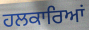
ਹਲਕਾਰਿਆਂ